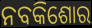
ନବକିଶୋର